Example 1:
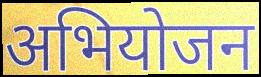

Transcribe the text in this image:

अभियोजन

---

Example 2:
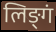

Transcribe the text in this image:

लिङ्गं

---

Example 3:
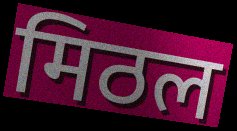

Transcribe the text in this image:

मिठल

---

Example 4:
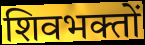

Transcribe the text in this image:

शिवभक्तों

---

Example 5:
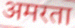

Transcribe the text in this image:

अमरता